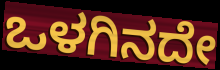
ಒಳಗಿನದೇ